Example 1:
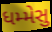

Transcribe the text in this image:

ધમ્મેસુ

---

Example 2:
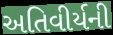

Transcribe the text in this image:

અતિવીર્યની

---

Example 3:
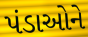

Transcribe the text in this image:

પંડાઓને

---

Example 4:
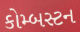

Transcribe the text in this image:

કોમ્બસ્ટન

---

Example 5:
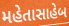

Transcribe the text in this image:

મહેતાસાહેબ